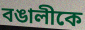
বঙালীকে